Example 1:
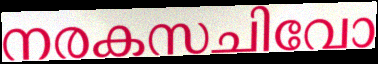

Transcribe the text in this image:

നരകസചിവോ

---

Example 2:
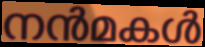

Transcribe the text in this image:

നൻമകൾ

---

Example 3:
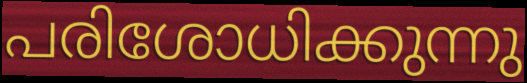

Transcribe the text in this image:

പരിശോധിക്കുന്നു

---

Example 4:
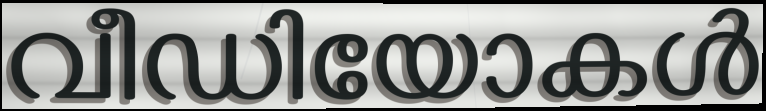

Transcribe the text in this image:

വീഡിയോകൾ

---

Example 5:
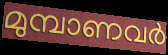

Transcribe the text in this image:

മുമ്പാണവർ